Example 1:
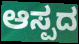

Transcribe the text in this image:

ಆಸ್ಪದ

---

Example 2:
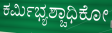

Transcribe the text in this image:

ಕರ್ಮಿಭ್ಯಶ್ಚಾಧಿಕೋ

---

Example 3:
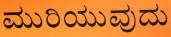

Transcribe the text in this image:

ಮುರಿಯುವುದು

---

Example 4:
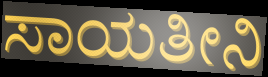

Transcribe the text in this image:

ಸಾಯತೀನಿ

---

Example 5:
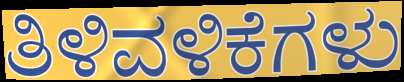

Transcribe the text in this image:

ತಿಳಿವಳಿಕೆಗಳು